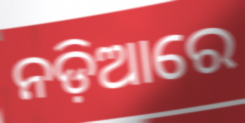
ନଡ଼ିଆରେ